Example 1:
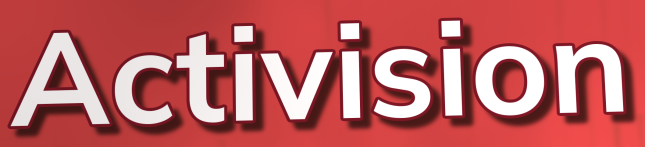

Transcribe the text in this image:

Activision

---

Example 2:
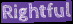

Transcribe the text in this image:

Rightful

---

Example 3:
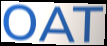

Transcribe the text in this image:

OAT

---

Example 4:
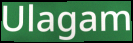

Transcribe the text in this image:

Ulagam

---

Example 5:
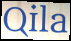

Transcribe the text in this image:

Qila